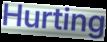
Hurting